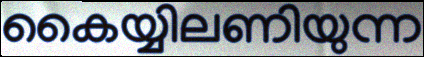
കൈയ്യിലണിയുന്ന